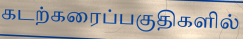
கடற்கரைப்பகுதிகளில்